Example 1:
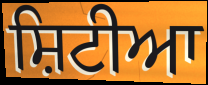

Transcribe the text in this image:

ਸ਼ਿਟੀਆ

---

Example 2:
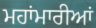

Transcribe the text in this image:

ਮਹਾਂਮਾਰੀਆਂ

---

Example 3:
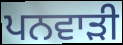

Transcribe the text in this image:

ਪਨਵਾੜੀ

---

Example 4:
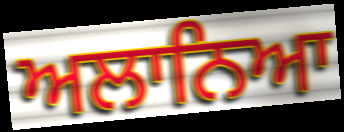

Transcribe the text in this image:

ਅਲਾਨਿਆ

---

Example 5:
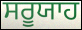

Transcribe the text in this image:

ਸਰੂਯਾਹ